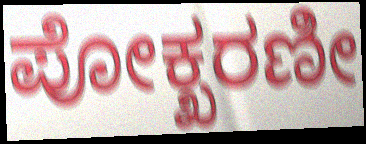
ಪೋಕ್ಖರಣೀ